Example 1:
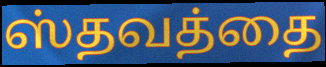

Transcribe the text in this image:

ஸ்தவத்தை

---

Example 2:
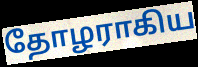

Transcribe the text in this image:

தோழராகிய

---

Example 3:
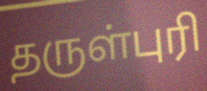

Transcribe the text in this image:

தருள்புரி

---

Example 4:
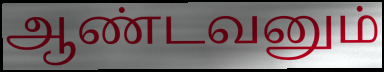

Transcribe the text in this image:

ஆண்டவனும்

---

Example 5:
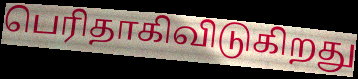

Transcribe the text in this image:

பெரிதாகிவிடுகிறது